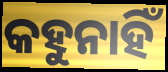
କହୁନାହିଁ